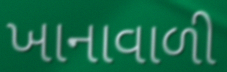
ખાનાવાળી